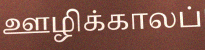
ஊழிக்காலப்